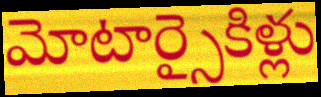
మోటార్సైకిళ్లు